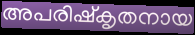
അപരിഷ്കൃതനായ